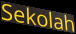
Sekolah